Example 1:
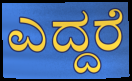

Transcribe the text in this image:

ಎದ್ದರೆ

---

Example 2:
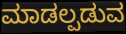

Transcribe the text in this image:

ಮಾಡಲ್ಪಡುವ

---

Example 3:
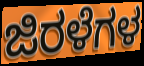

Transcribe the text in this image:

ಜಿರಳೆಗಳ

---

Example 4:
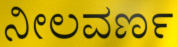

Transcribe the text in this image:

ನೀಲವರ್ಣ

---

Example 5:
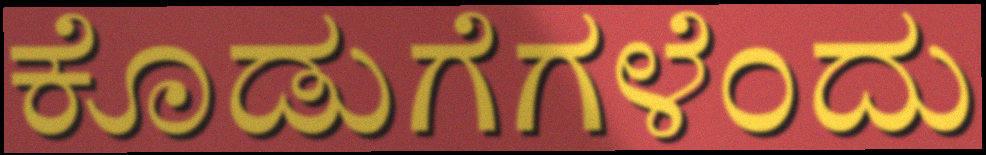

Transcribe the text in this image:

ಕೊಡುಗೆಗಳೆಂದು